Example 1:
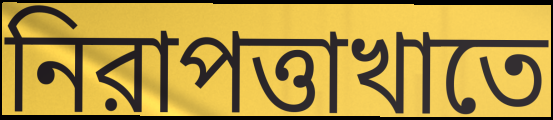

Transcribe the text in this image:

নিরাপত্তাখাতে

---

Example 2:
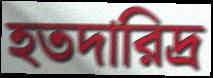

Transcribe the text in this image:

হতদারিদ্র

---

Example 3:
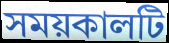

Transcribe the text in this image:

সময়কালটি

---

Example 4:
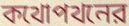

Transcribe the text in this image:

কথোপথনের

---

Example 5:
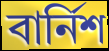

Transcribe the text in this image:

বার্নিশ